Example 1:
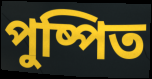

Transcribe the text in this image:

পুষ্পিত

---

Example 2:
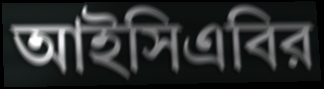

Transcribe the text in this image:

আইসিএবির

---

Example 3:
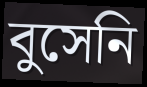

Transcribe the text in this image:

বুসেনি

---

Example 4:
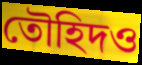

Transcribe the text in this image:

তৌহিদও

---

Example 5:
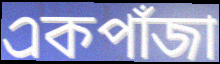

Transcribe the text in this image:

একপাঁজা